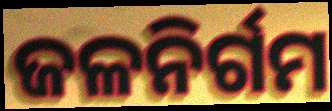
ଜଳନିର୍ଗମ